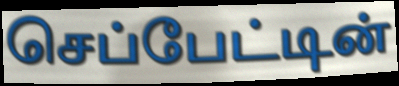
செப்பேட்டின்